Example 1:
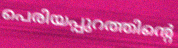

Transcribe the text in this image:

പെരിയപ്പുറത്തിന്റെ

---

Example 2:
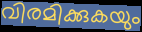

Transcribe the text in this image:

വിരമിക്കുകയും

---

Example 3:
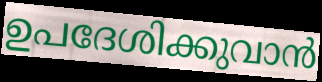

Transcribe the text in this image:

ഉപദേശിക്കുവാൻ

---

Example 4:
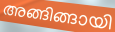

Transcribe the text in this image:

അങ്ങിങ്ങായി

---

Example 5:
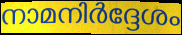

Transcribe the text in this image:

നാമനിർദ്ദേശം